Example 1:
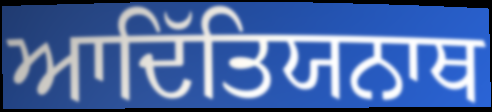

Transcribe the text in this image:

ਆਦਿੱਤਿਯਨਾਥ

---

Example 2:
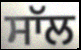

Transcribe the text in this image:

ਸਾੱਲ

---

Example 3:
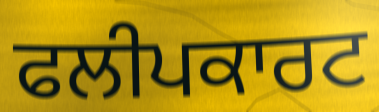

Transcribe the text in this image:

ਫਲੀਪਕਾਰਟ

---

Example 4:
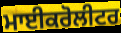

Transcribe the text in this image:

ਮਾਈਕਰੋਲੀਟਰ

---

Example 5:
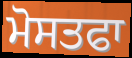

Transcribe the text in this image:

ਮੋਸਤਫਾ